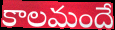
కాలమందే